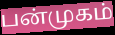
பன்முகம்